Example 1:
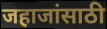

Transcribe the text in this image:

जहाजांसाठी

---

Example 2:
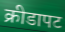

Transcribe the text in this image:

क्रीडापट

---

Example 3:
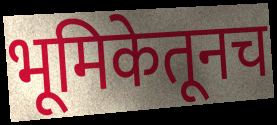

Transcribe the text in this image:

भूमिकेतूनच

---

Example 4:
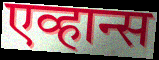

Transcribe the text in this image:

एव्हान्स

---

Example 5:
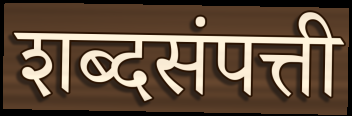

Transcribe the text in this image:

शब्दसंपत्ती